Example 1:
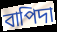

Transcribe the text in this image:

বাপিদা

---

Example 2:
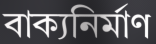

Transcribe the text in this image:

বাক্যনির্মাণ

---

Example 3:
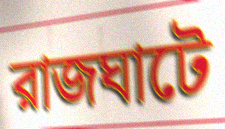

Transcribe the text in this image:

রাজঘাটে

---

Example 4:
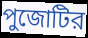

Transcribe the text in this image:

পুজোটির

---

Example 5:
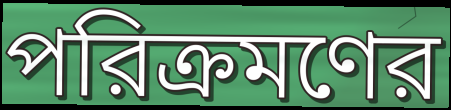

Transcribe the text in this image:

পরিক্রমণের